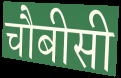
चौबीसी